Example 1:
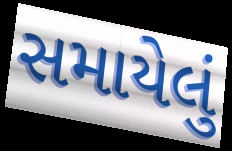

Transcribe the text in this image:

સમાયેલું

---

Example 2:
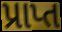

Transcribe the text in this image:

પ્રાપ્ત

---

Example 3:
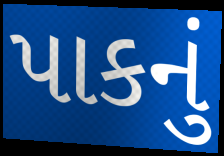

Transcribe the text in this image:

પાકનું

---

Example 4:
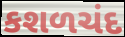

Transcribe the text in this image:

કશળચંદ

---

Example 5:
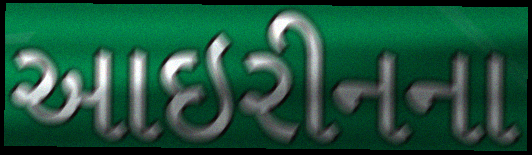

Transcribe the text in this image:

આઇરીનના